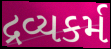
દ્રવ્યકર્મ